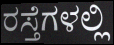
ರಸ್ತೆಗಳಲ್ಲಿ